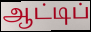
ஆட்டிப்